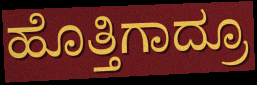
ಹೊತ್ತಿಗಾದ್ರೂ